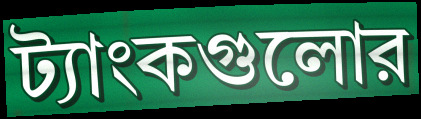
ট্যাংকগুলোর